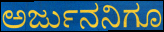
ಅರ್ಜುನನಿಗೂ